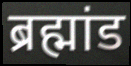
ब्रह्मांड